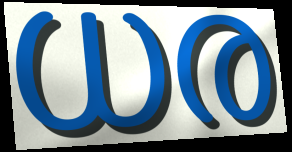
ധര